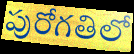
పురోగతిలో